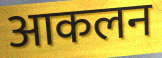
आकलन